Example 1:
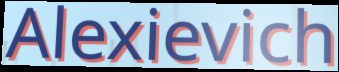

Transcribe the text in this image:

Alexievich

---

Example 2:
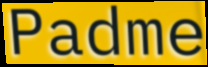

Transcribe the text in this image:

Padme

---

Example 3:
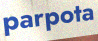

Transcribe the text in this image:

parpota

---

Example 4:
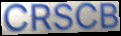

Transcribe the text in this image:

CRSCB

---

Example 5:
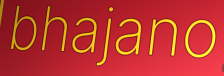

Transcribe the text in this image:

bhajano